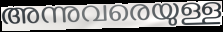
അന്നുവരെയുള്ള